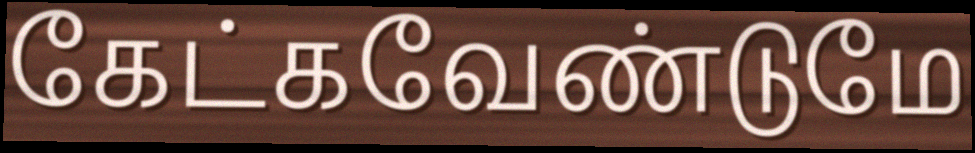
கேட்கவேண்டுமே